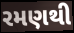
રમણથી